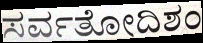
ಸರ್ವತೋದಿಶಂ